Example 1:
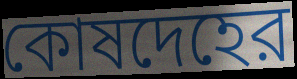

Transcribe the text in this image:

কোষদেহের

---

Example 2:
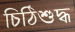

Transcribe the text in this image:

চিঠিশুদ্ধ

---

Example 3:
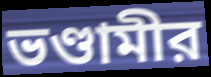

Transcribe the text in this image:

ভণ্ডামীর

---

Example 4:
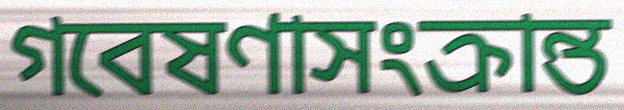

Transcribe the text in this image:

গবেষণাসংক্রান্ত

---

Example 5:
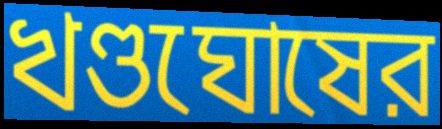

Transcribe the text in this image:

খণ্ডঘোষের